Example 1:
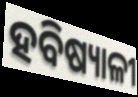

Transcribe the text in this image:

ହବିଷ୍ୟାଳୀ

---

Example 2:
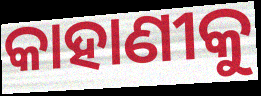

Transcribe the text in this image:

କାହାଣୀକୁ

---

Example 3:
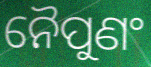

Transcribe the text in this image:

ନୈପୁଣଂ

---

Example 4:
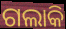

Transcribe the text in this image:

ଗଲାକି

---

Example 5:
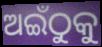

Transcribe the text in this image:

ଅଇଁଠୁକୁ